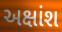
અક્ષાંશ